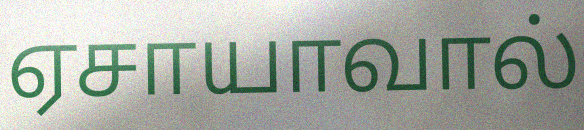
ஏசாயாவால்